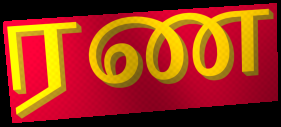
ரண